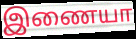
இணையா